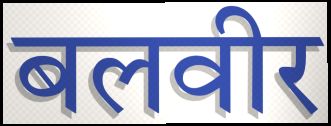
बलवीर